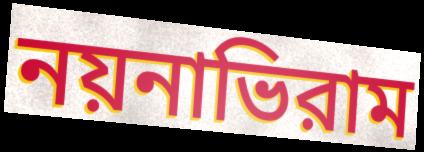
নয়নাভিরাম